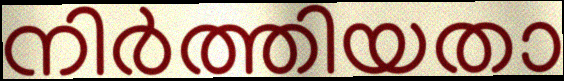
നിർത്തിയതാ